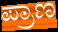
ಪ್ರಾಣ